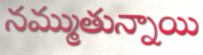
నమ్ముతున్నాయి